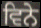
ਵਿਨੇ